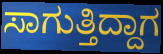
ಸಾಗುತ್ತಿದ್ದಾಗ